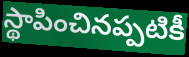
స్థాపించినప్పటికీ